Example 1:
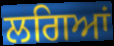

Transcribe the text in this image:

ਲਗਿਆਂ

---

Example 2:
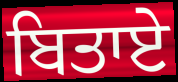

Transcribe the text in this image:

ਬਿਤਾਏ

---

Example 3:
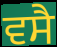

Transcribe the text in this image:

ਵਸੈ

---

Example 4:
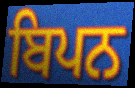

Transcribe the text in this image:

ਬਿਪਨ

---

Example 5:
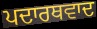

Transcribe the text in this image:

ਪਦਾਰਥਵਾਦ